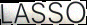
LASSO